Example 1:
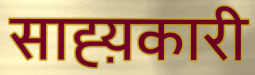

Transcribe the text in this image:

साह्य़कारी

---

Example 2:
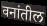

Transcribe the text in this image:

वनांतील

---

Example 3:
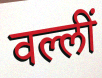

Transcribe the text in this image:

वल्लीं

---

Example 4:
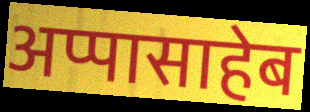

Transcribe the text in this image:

अप्पासाहेब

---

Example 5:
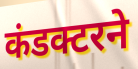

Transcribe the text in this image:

कंडक्टरने